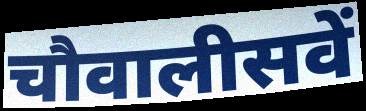
चौवालीसवें